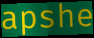
apshe